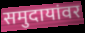
समुदायांवर